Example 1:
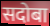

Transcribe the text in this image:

सदोबा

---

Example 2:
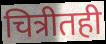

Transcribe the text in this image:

चित्रीतही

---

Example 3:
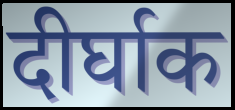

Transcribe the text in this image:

दीर्घाक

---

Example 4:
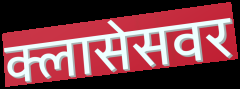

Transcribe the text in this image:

क्लासेसवर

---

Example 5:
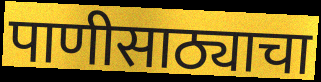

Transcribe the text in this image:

पाणीसाठ्याचा